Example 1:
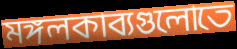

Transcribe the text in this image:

মঙ্গলকাব্যগুলোতে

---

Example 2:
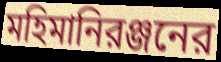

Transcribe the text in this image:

মহিমানিরঞ্জনের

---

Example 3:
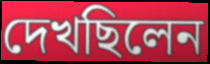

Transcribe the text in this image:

দেখছিলেন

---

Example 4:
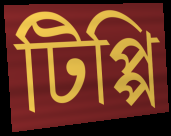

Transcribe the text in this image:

টিপ্পি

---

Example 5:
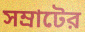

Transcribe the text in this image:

সম্রাটের